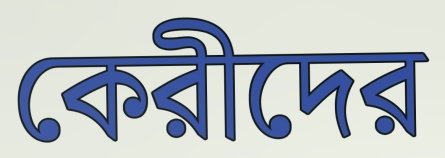
কেরীদের